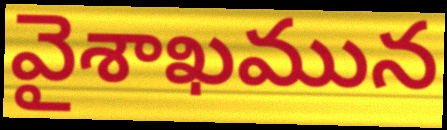
వైశాఖమున